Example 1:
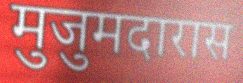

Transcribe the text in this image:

मुजुमदारास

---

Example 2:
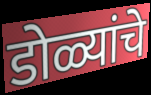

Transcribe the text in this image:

डोळ्यांचे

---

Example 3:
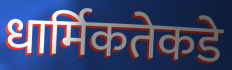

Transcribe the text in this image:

धार्मिकतेकडे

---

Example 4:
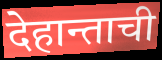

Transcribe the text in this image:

देहान्ताची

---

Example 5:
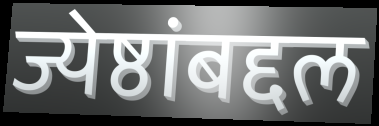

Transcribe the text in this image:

ज्येष्ठांबद्दल